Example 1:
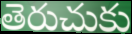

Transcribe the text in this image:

తెరుచుకు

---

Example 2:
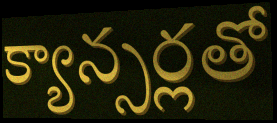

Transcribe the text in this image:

క్యాన్సర్లతో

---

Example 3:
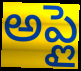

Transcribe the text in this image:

అప్లై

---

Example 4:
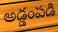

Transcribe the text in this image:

అడ్డంపడి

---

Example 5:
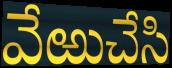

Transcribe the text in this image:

వేఱుచేసి